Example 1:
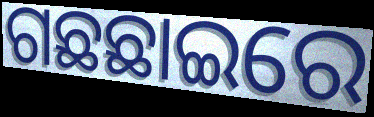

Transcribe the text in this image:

ଗଛଛାଇରେ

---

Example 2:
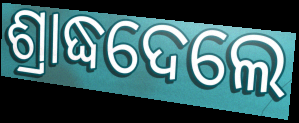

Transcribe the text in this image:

ଶ୍ରାଦ୍ଧଦେଲେ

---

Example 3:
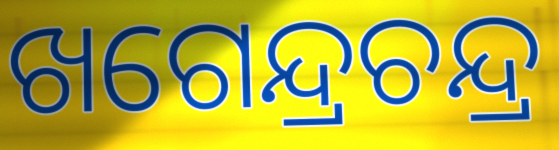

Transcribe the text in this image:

ଖଗେନ୍ଦ୍ରଚନ୍ଦ୍ର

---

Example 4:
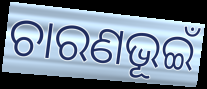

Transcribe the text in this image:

ଚାରଣଭୂଇଁ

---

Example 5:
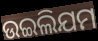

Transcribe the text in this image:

ଉଇଲିଯମ